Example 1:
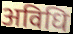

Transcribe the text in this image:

अविधि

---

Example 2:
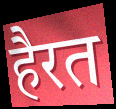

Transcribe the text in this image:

हैरत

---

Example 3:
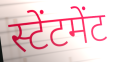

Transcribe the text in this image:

स्टेंटमेंट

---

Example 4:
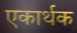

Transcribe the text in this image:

एकार्थक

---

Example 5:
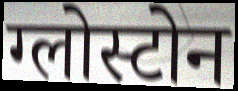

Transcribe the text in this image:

ग्लोस्टोन